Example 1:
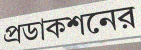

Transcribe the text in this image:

প্রডাকশনের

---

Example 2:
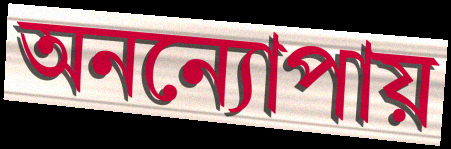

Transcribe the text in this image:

অনন্যোপায়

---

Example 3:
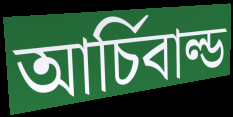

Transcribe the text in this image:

আর্চিবাল্ড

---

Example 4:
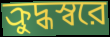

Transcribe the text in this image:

ক্রুদ্ধস্বরে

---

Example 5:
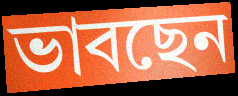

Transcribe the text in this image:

ভাবছেন